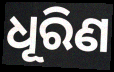
ଧୂରିଣ